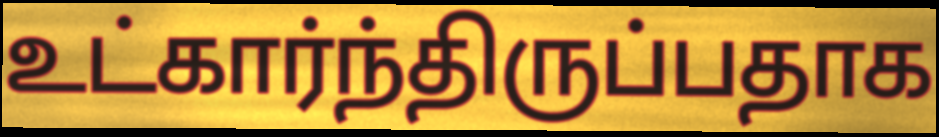
உட்கார்ந்திருப்பதாக